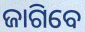
ଜାଗିବେ